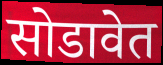
सोडावेत